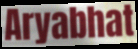
Aryabhat